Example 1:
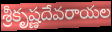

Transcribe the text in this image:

శ్రీకృష్ణదేవరాయల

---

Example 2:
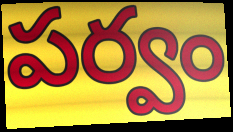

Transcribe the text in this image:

పర్వం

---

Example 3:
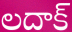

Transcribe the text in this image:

లదాక్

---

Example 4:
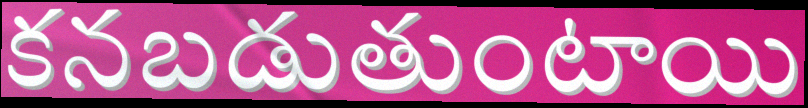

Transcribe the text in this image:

కనబడుతుంటాయి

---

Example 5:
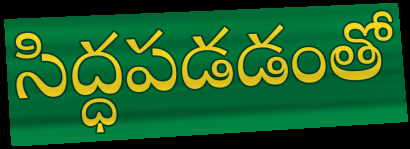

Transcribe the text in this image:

సిద్ధపడడంతో